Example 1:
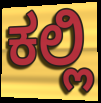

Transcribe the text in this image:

ಕಲ್ಲಿ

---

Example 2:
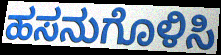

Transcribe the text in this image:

ಹಸನುಗೊಳಿಸಿ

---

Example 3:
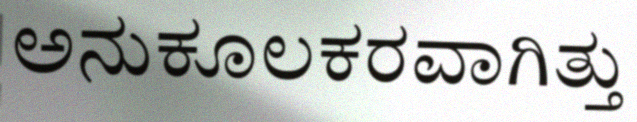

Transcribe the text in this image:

ಅನುಕೂಲಕರವಾಗಿತ್ತು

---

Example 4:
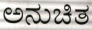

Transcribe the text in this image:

ಅನುಚಿತ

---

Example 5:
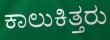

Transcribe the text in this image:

ಕಾಲುಕಿತ್ತರು